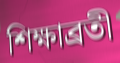
শিক্ষাব্রতী